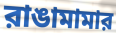
রাঙামামার